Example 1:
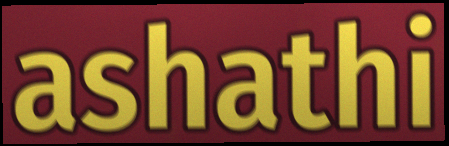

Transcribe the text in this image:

ashathi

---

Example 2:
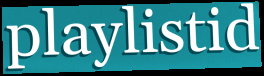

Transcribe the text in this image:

playlistid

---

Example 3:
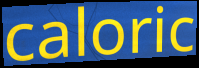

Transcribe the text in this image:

caloric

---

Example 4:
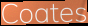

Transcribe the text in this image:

Coates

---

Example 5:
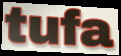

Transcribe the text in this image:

tufa